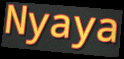
Nyaya